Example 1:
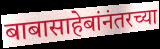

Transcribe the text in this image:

बाबासाहेबांनंतरच्या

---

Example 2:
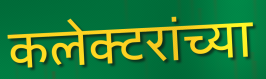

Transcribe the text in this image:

कलेक्टरांच्या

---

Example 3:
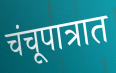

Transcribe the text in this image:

चंचूपात्रात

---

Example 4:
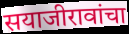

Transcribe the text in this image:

सयाजीरावांचा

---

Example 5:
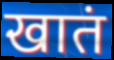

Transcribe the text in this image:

खातं